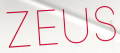
ZEUS